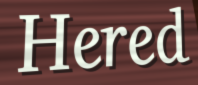
Hered